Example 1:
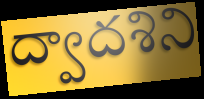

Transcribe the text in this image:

ద్వాదశిని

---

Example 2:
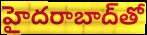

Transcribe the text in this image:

హైదరాబాద్‌తో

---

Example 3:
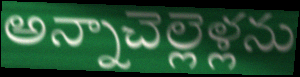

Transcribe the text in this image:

అన్నాచెల్లెళ్లను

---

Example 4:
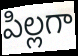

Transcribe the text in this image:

పిల్లగా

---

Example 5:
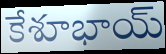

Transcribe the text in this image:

కేశూభాయ్